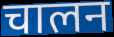
चालन